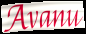
Avanu